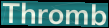
Thromb